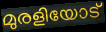
മുരളിയോട്